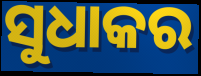
ସୁଧାକର